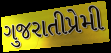
ગુજરાતીપ્રેમી